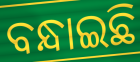
ବନ୍ଧାଇଛି